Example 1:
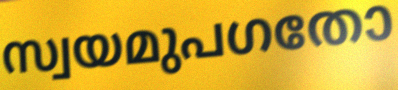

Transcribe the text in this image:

സ്വയമുപഗതോ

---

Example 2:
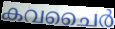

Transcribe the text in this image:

കവചൈർ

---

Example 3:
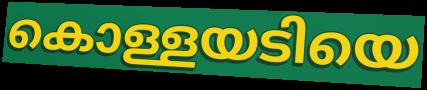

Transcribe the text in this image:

കൊള്ളയടിയെ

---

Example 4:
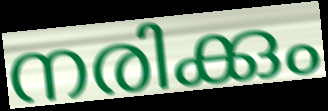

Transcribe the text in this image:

നരിക്കും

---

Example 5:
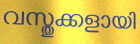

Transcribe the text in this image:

വസ്തുക്കളായി